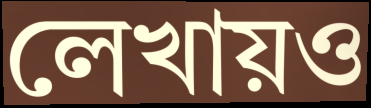
লেখায়ও